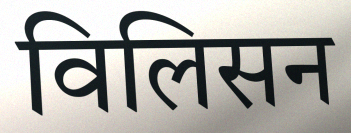
विलिसन